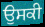
ਉਸਕੀ